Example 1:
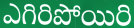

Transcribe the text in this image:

ఎగిరిపోయిరి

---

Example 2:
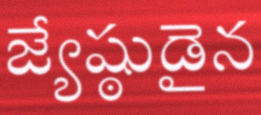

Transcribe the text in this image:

జ్యేష్ఠుడైన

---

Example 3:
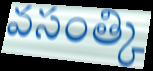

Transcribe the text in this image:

వసంత్కి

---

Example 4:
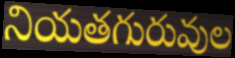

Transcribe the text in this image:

నియతగురువుల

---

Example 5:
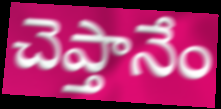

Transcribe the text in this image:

చెప్తానేం